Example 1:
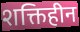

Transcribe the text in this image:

शक्तिहीन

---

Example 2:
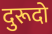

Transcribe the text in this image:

दुरूदो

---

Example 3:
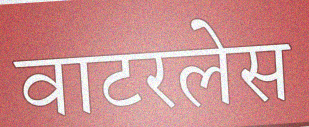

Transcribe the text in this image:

वाटरलेस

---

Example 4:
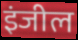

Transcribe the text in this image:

इंजील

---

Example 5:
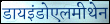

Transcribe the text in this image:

डायइंडोएलमीथेन